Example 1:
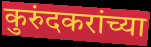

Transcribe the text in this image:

कुरुंदकरांच्या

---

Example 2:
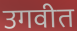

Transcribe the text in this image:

उगवीत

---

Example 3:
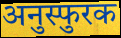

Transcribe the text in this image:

अनुस्फुरक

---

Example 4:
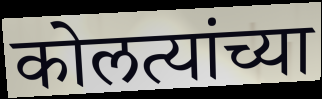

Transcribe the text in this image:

कोलत्यांच्या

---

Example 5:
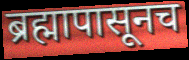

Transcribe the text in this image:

ब्रह्मापासूनच